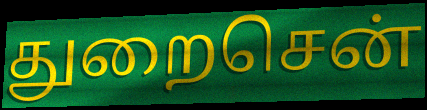
துறைசென்